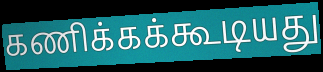
கணிக்கக்கூடியது